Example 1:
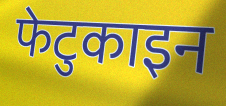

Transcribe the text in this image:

फेटुकाइन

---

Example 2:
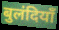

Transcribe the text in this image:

बुलंदियाँ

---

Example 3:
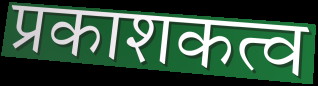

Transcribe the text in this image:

प्रकाशकत्व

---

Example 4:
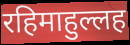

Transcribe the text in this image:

रहिमाहुल्लह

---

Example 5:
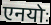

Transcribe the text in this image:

एनयोः